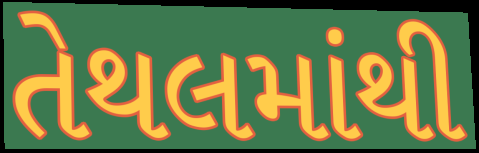
તેથલમાંથી